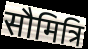
सौमित्रि